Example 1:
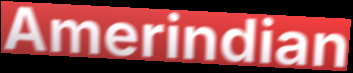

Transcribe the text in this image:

Amerindian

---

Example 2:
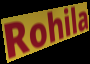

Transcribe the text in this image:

Rohila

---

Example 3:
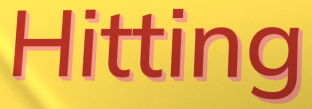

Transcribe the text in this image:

Hitting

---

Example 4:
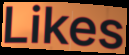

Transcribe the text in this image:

Likes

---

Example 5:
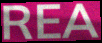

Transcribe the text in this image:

REA